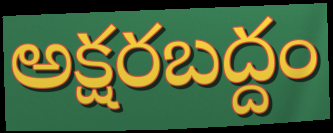
అక్షరబద్దం